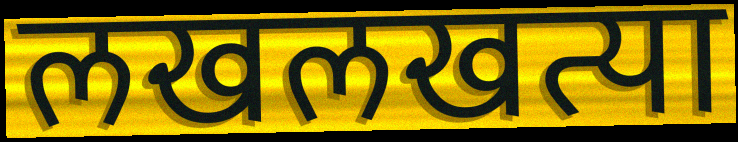
लखलखत्या